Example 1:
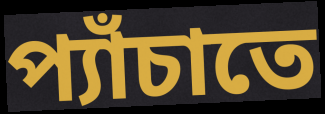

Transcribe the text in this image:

প্যাঁচাতে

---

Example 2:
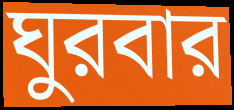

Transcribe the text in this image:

ঘুরবার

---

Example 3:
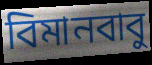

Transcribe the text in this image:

বিমানবাবু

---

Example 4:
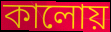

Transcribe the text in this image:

কালোয়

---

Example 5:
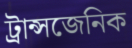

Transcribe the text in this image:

ট্রান্সজেনিক